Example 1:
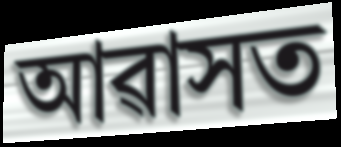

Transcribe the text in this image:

আৱাসত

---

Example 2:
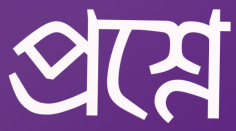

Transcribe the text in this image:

প্ৰশ্নে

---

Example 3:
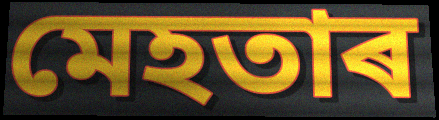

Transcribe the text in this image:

মেহতাৰ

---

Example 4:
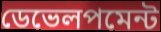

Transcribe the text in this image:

ডেভেলপমেন্ট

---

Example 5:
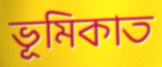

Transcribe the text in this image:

ভূমিকাত